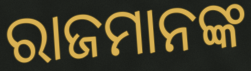
ରାଜମାନଙ୍କ